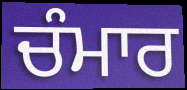
ਚੰਮਾਰ